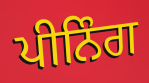
ਪੀਨਿੰਗ